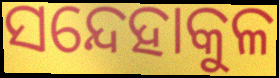
ସନ୍ଦେହାକୁଳ